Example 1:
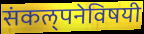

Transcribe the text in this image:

संकल्पनेविषयी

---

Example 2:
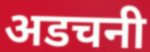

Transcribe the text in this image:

अडचनी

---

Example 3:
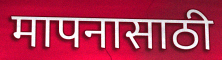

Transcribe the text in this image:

मापनासाठी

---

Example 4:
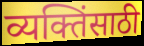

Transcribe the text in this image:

व्यक्तिंसाठी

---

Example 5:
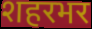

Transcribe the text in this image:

शहरभर